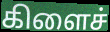
கிளைச்